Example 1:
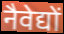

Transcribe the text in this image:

नैवेद्यों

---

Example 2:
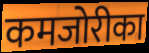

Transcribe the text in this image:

कमजोरीका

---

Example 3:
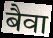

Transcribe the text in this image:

बैवा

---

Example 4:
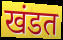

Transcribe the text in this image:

खंडत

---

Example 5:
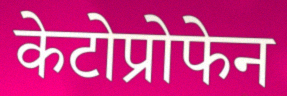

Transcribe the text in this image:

केटोप्रोफेन